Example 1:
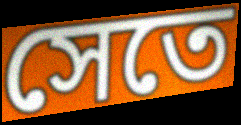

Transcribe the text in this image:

সেতে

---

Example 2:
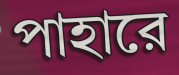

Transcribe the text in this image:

পাহারে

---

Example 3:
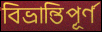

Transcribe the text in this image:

বিভ্রান্তিপূর্ণ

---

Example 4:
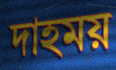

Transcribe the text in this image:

দাহময়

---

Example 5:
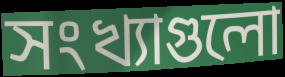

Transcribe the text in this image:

সংখ্যাগুলো